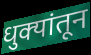
धुक्यांतून